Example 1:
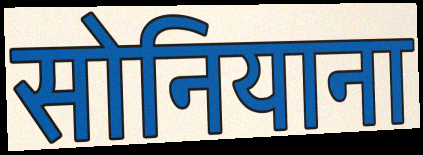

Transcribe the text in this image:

सोनियाना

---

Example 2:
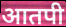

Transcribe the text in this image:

आतपी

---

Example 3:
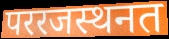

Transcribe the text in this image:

पररजस्थनत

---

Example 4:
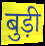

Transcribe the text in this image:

बुड़ी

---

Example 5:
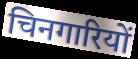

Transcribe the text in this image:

चिनगारियों